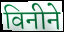
विनीने